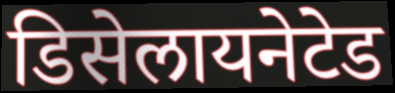
डिसेलायनेटेड